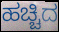
ಹಚ್ಚಿದ